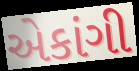
એકાંગી